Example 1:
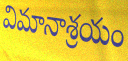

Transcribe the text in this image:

విమానాశ్రయం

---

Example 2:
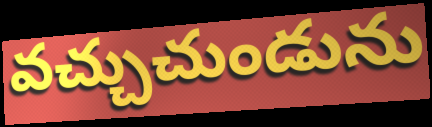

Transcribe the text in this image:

వచ్చుచుండును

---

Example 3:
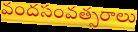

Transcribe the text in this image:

వందసంవత్సరాలు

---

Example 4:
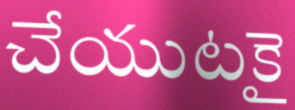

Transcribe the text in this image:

చేయుటకై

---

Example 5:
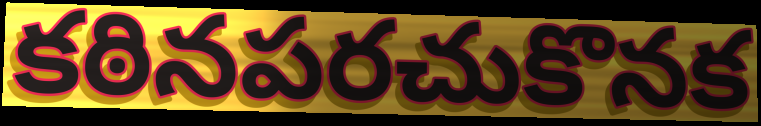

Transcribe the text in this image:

కఠినపరచుకొనక